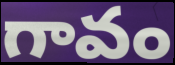
గావం